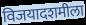
विजयादशमीला